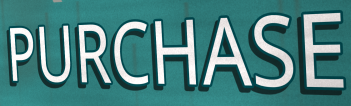
PURCHASE